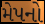
મેપનો